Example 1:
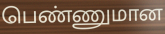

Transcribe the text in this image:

பெண்ணுமான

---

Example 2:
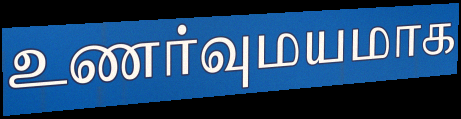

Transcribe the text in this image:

உணர்வுமயமாக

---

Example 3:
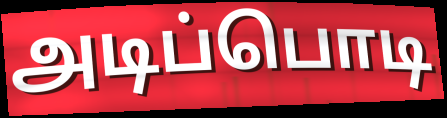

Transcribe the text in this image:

அடிப்பொடி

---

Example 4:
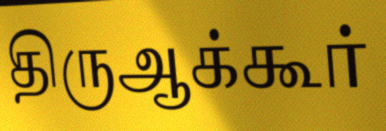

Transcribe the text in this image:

திருஆக்கூர்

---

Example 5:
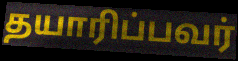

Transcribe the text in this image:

தயாரிப்பவர்